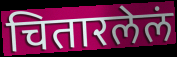
चितारलेलं